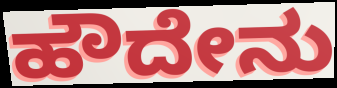
ಹೌದೇನು